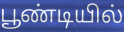
பூண்டியில்